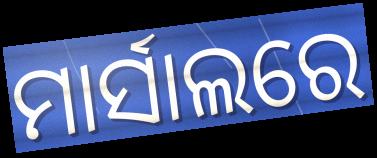
ମାର୍ସାଲରେ